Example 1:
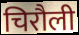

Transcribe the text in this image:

चिरौली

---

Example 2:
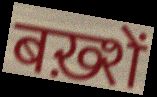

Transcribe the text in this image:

बख़्शें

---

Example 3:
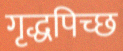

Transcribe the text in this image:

गृद्धपिच्छ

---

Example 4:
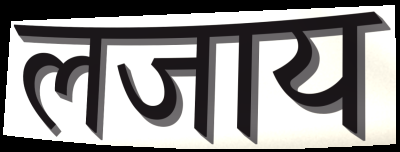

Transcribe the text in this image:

लजाय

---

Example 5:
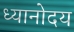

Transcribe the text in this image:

ध्यानोदय